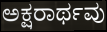
ಅಕ್ಷರಾರ್ಥವು